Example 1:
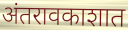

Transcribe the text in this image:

अंतरावकाशात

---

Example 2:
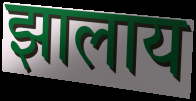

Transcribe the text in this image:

झालाय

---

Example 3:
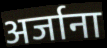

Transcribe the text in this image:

अर्जाना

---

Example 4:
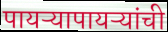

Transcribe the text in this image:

पायऱ्यापायऱ्यांची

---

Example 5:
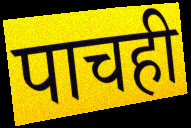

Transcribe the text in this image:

पाचही